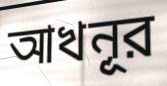
আখনূর